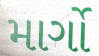
માર્ગો